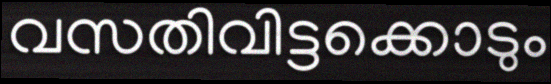
വസതിവിട്ടക്കൊടും